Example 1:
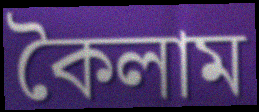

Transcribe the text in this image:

কৈলাম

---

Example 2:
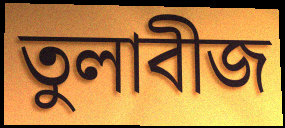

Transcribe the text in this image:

তুলাবীজ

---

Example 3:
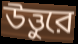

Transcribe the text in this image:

উত্তুরে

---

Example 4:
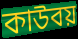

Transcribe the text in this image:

কাউবয়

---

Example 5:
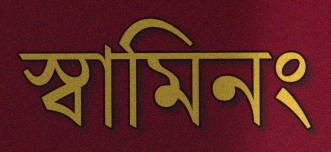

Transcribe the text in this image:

স্বামিনং